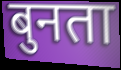
बुनता